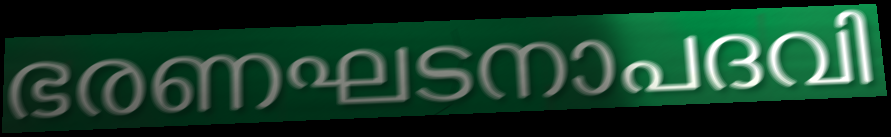
ഭരണഘടനാപദവി